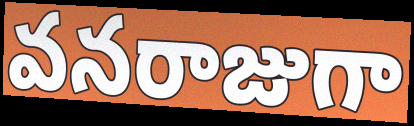
వనరాజుగా